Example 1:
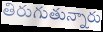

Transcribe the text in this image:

తిరుగుతున్నారు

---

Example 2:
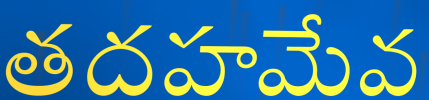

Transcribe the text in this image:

తదహమేవ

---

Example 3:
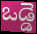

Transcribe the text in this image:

ఒడ్డె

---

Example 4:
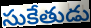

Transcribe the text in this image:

సుకేతుడు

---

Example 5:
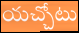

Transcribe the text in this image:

యచ్చోటు